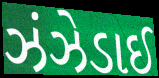
ઝંઝેડાઈ